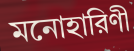
মনোহারিণী